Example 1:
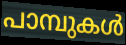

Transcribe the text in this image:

പാമ്പുകൾ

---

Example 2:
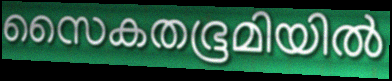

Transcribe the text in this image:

സൈകതഭൂമിയിൽ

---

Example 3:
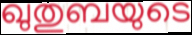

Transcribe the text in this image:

ഖുതുബയുടെ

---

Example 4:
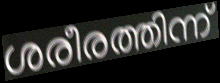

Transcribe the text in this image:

ശരീരത്തിന്ന്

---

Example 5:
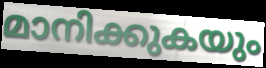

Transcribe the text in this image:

മാനിക്കുകയും